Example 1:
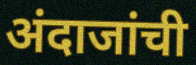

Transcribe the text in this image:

अंदाजांची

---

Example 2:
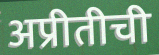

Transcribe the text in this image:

अप्रीतीची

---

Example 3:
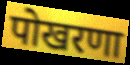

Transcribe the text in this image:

पोखरणा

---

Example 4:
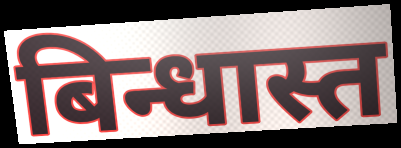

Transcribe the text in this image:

बिन्धास्त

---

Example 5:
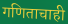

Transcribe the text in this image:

गणिताचाही